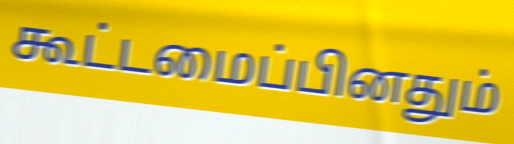
கூட்டமைப்பினதும்